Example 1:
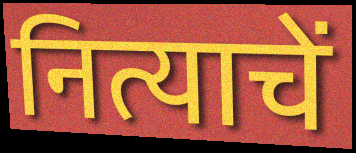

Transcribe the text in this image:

नित्याचें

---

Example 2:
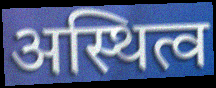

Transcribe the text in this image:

अस्थित्व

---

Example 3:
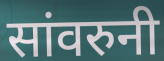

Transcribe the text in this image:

सांवरुनी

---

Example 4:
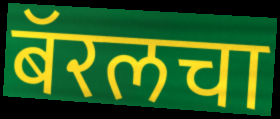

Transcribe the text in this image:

बॅरलचा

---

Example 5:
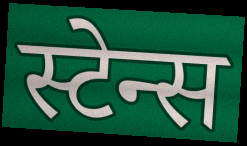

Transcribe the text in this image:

स्टेन्स